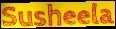
Susheela